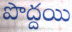
పొద్దయి